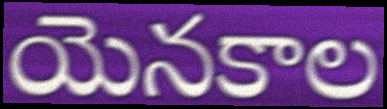
యెనకాల